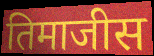
तिमाजीस